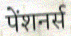
पेंशनर्स